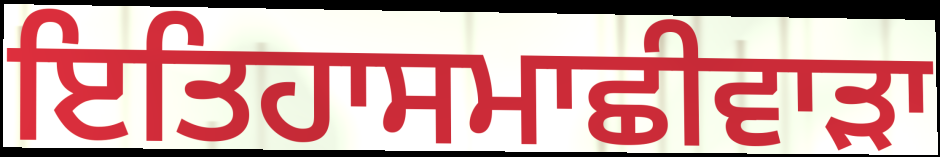
ਇਤਿਹਾਸਮਾਛੀਵਾੜਾ